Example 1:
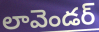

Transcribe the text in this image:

లావెండర్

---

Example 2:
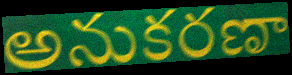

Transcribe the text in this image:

అనుకరణా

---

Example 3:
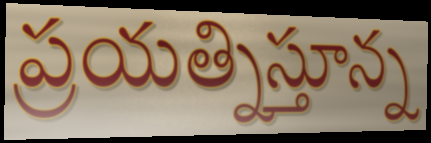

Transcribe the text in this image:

ప్రయత్నిస్తూన్న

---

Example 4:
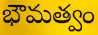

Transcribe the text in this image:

భౌమత్వం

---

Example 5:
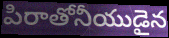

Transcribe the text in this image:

పిరాతోనీయుడైన